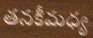
తనకీమధ్య